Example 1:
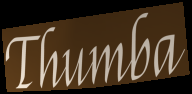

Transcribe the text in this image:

Thumba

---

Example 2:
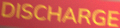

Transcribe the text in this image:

DISCHARGE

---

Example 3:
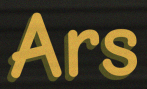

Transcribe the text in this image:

Ars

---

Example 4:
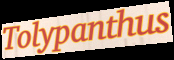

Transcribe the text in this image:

Tolypanthus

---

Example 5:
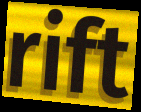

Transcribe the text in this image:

rift